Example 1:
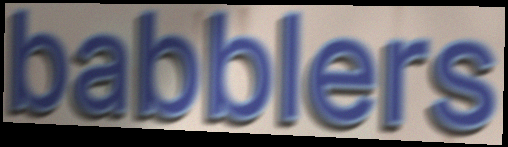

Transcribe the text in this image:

babblers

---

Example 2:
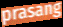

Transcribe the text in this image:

prasang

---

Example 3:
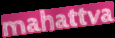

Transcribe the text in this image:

mahattva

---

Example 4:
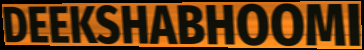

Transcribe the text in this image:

DEEKSHABHOOMI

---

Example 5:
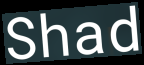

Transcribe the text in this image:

Shad